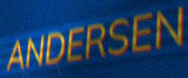
ANDERSEN